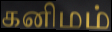
கனிமம்